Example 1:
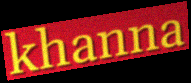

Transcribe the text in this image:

khanna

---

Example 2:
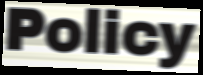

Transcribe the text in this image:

Policy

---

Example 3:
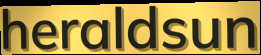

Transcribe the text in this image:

heraldsun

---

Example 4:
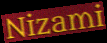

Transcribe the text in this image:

Nizami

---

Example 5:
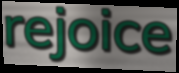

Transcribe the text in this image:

rejoice